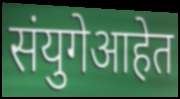
संयुगेआहेत